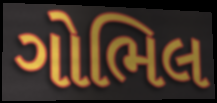
ગોભિલ